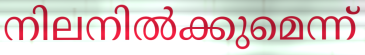
നിലനിൽക്കുമെന്ന്